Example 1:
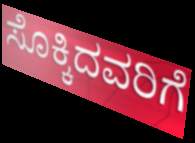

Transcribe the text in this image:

ಸೊಕ್ಕಿದವರಿಗೆ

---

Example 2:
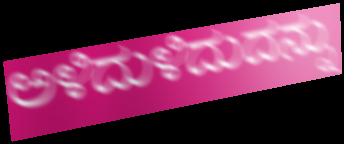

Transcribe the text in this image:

ಅಳಿದುಳಿದುದನ್ನು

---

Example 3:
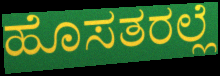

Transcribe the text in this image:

ಹೊಸತರಲ್ಲೆ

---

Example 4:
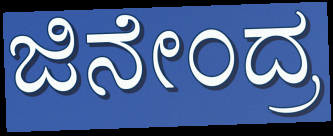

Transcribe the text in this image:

ಜಿನೇಂದ್ರ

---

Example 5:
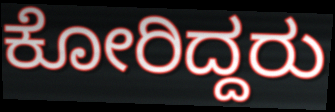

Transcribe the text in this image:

ಕೋರಿದ್ದರು